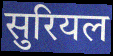
सुरियल